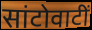
सांटोवाटीं